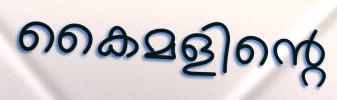
കൈമളിന്റെ